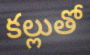
కల్లుతో